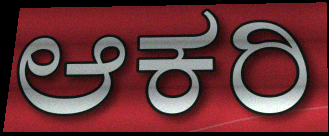
ಆಕರಿ